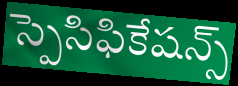
స్పెసిఫికేషన్స్